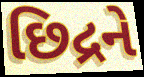
છિદ્રને